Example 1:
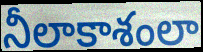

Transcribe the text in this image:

నీలాకాశంలా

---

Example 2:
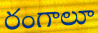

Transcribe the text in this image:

రంగాలూ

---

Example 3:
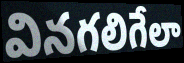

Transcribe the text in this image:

వినగలిగేలా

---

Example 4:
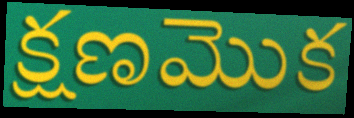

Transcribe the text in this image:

క్షణమొక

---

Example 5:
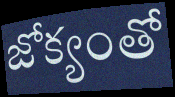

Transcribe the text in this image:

జోక్యంతో